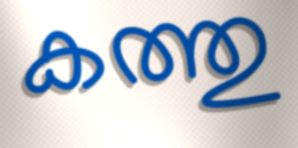
കത്തു